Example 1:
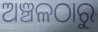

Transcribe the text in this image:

ଅଞ୍ଚଳଠାରୁ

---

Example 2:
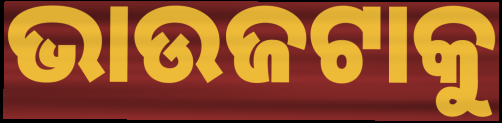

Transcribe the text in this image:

ଭାଉଜଟାକୁ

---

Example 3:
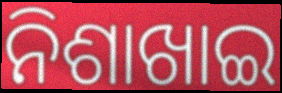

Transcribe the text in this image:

ନିଶାଖାଇ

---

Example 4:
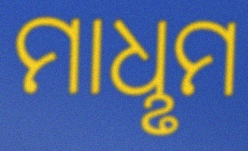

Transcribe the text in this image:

ମାଧୢମ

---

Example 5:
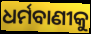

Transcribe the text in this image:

ଧର୍ମବାଣୀକୁ